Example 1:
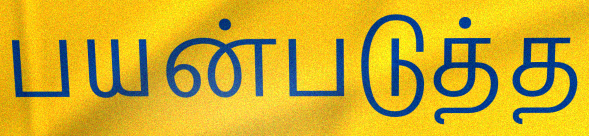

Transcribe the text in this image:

பயன்படுத்த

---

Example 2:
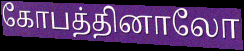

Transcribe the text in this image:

கோபத்தினாலோ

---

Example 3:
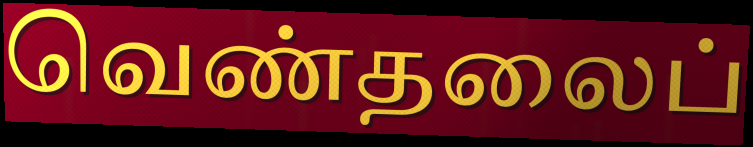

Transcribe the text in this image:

வெண்தலைப்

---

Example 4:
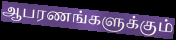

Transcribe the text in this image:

ஆபரணங்களுக்கும்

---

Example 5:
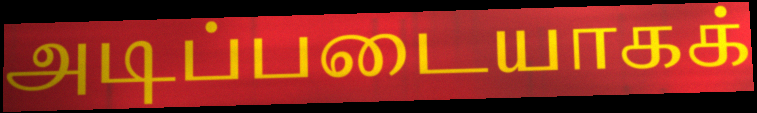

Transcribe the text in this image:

அடிப்படையாகக்